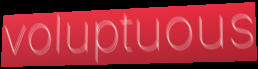
voluptuous